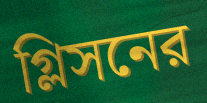
গ্লিসনের